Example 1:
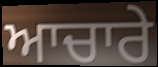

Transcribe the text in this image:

ਆਚਾਰੇ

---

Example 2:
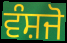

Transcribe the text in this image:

ਵੰਸ਼ਜੋ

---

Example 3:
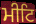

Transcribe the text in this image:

ਮੀਟਿ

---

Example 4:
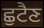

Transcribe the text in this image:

ਛੁਟੈਣ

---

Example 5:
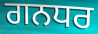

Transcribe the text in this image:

ਗਨਧਰ